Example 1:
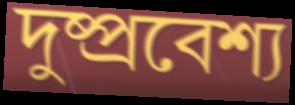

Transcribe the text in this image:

দুষ্প্রবেশ্য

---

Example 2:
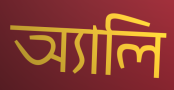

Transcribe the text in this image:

অ্যালি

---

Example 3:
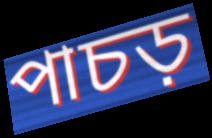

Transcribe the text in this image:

পাচড়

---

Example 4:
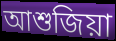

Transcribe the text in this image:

আশুজিয়া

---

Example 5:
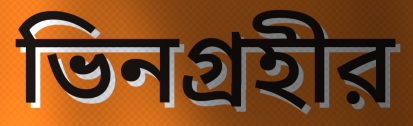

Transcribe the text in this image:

ভিনগ্রহীর